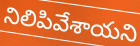
నిలిపివేశాయని